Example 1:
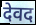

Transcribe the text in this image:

देवद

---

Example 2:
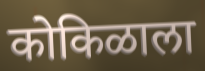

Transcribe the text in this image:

कोकिळाला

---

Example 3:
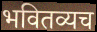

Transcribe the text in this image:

भवितव्यच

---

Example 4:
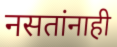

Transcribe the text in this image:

नसतांनाही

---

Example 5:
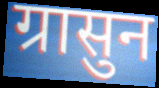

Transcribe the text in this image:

ग्रासुन